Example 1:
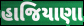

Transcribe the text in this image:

હાજિયાણા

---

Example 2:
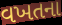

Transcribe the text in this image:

વખતના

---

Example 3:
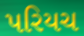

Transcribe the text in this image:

પરિયચ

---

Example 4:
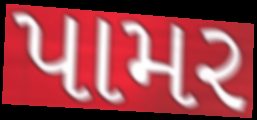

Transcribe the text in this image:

પામર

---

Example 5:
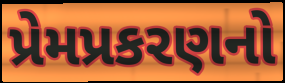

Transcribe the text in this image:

પ્રેમપ્રકરણનો